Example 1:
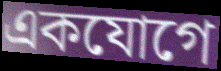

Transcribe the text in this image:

একযোগে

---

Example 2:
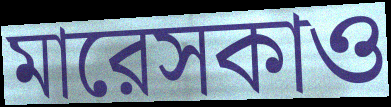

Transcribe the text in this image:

মারেসকাও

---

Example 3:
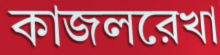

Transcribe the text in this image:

কাজলরেখা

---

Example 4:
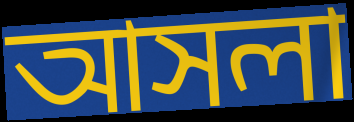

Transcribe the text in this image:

আসলা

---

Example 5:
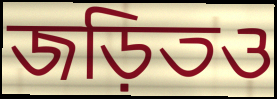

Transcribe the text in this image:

জড়িতও